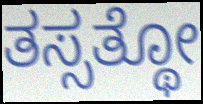
ತಸ್ಸತ್ಥೋ